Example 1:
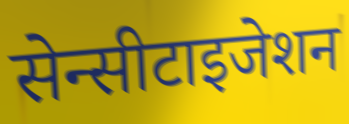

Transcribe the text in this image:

सेन्सीटाइजेशन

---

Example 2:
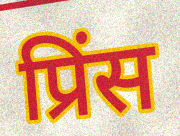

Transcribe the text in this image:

प्रिंस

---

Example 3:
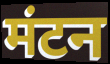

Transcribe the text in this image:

मंटन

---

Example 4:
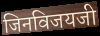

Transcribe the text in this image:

जिनविजयजी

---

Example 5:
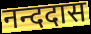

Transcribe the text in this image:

नन्ददास